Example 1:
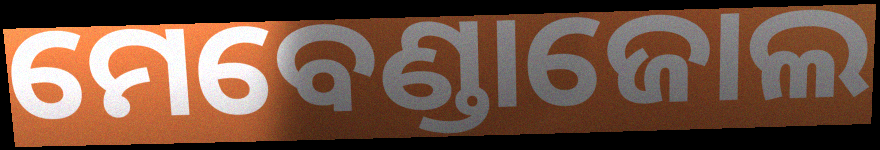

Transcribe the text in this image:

ମେବେଣ୍ଡାଜୋଲ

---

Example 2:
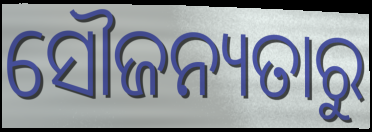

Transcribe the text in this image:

ସୌଜନ୍ୟତାରୁ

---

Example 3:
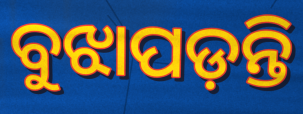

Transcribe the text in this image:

ବୁଝାପଡ଼ନ୍ତି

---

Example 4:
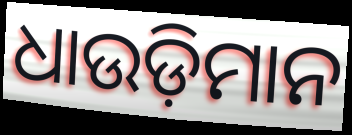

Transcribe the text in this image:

ଧାଉଡ଼ିମାନ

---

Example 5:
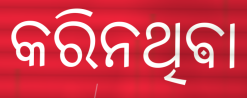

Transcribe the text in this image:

କରିନଥିଵା